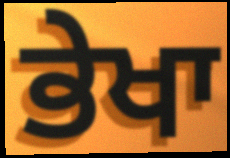
ਭੇਖਾ